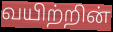
வயிற்றின்